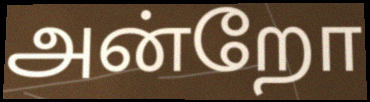
அன்றோ